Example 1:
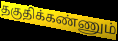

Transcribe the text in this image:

தகுதிக்கண்ணும்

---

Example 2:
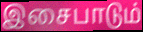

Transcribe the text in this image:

இசைபாடும்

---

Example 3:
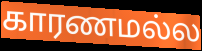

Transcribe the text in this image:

காரணமல்ல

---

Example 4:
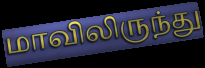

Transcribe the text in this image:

மாவிலிருந்து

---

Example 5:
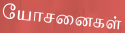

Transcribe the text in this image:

யோசனைகள்